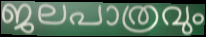
ജലപാത്രവും